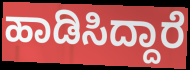
ಹಾಡಿಸಿದ್ದಾರೆ